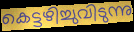
കെട്ടഴിച്ചുവിടുന്നു